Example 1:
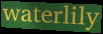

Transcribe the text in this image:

waterlily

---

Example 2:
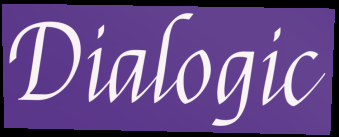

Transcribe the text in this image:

Dialogic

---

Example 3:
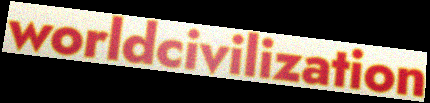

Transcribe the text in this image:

worldcivilization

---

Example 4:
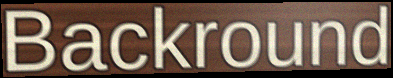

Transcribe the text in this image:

Backround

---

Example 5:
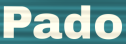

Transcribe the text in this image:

Pado